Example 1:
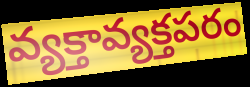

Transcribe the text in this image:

వ్యక్తావ్యక్తపరం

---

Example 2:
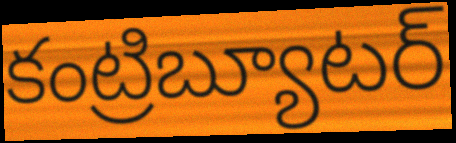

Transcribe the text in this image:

కంట్రిబ్యూటర్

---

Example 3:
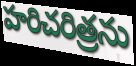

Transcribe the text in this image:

హరిచరిత్రను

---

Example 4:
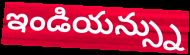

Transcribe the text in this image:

ఇండియన్స్ను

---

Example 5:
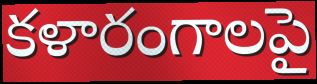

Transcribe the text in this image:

కళారంగాలపై